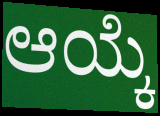
ಆಯ್ಕೆ